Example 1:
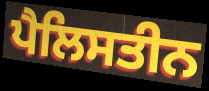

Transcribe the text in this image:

ਪੈਲਿਸਤੀਨ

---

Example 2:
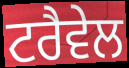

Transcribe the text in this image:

ਟਰੈਵੇਲ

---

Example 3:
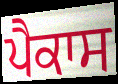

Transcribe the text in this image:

ਪੈਕਾਸ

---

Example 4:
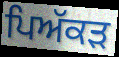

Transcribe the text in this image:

ਪਿਅੱਕੜ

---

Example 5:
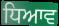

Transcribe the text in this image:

ਧਿਆਵ